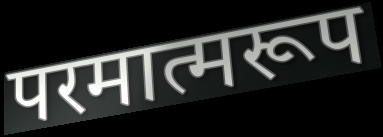
परमात्मरूप